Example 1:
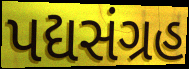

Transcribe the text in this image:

પદ્યસંગ્રહ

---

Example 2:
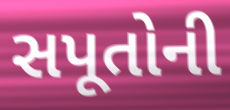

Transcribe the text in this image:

સપૂતોની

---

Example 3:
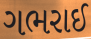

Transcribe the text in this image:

ગભરાઈ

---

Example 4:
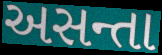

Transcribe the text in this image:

અસન્તા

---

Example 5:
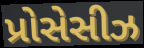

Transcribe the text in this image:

પ્રોસેસીઝ